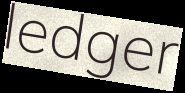
ledger